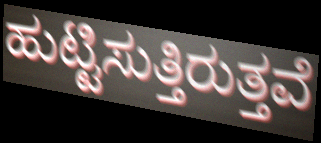
ಹುಟ್ಟಿಸುತ್ತಿರುತ್ತವೆ